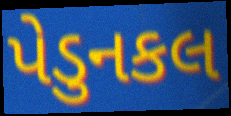
પેડુનકલ